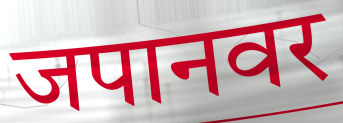
जपानवर